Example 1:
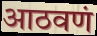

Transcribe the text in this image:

आठवणं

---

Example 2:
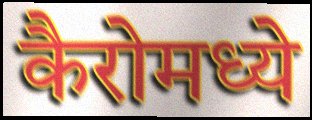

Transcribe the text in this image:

कैरोमध्ये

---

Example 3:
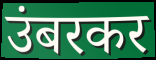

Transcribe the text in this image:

उंबरकर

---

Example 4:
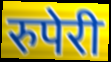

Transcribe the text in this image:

रुपेरी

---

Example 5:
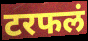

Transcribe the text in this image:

टरफलं